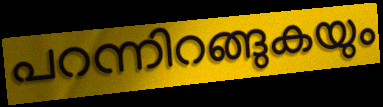
പറന്നിറങ്ങുകയും